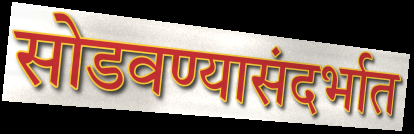
सोडवण्यासंदर्भात